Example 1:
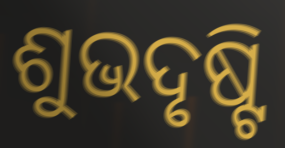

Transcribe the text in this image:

ଶୁଭଦୃଷ୍ଟି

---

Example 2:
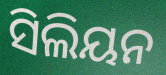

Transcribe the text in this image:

ସିଲିୟନ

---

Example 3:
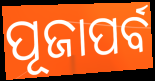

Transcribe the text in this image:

ପୂଜାପର୍ବ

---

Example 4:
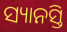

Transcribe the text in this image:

ସ୍ୟାନସ୍ତି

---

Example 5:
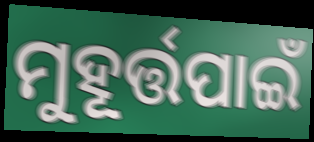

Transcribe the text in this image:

ମୁହୂର୍ତ୍ତପାଇଁ